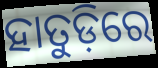
ହାତୁଡ଼ିରେ